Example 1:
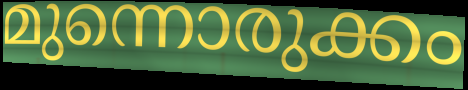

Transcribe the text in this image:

മുന്നൊരുക്കം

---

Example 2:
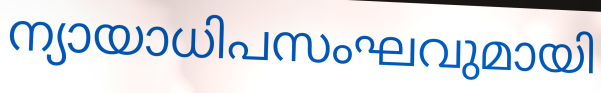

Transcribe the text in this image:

ന്യായാധിപസംഘവുമായി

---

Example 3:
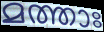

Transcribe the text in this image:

മത്താഃ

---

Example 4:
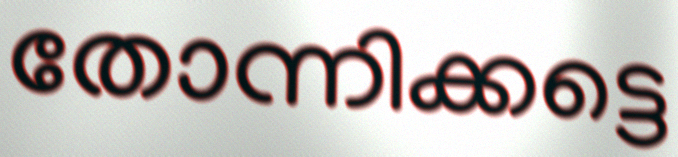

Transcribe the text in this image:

തോന്നിക്കട്ടെ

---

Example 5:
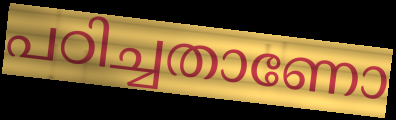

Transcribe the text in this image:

പഠിച്ചതാണോ